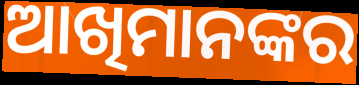
ଆଖିମାନଙ୍କର